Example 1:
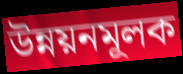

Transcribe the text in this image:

উন্নয়নমূলক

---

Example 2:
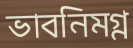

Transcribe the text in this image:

ভাবনিমগ্ন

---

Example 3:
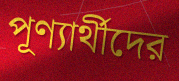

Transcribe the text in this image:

পূণ্যার্থীদের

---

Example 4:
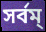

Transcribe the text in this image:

সর্বম্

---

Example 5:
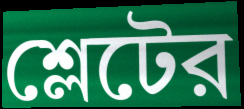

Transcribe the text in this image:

শ্লেটের